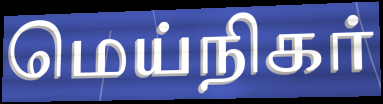
மெய்நிகர்